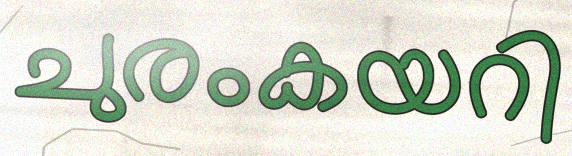
ചുരംകയറി